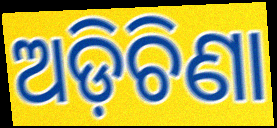
ଅଡ଼ିଚିଣା